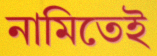
নামিতেই